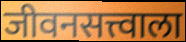
जीवनसत्त्वाला